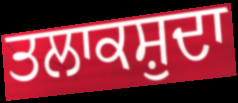
ਤਲਾਕਸ਼ੁਦਾ